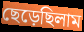
ছেড়েছিলাম